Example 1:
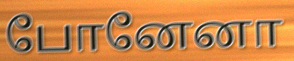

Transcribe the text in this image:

போனேனா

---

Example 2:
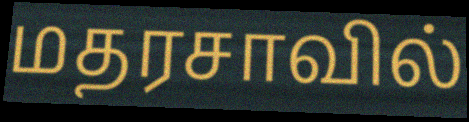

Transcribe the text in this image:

மதரசாவில்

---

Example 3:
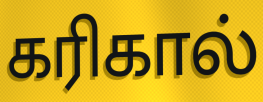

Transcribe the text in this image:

கரிகால்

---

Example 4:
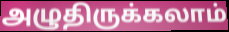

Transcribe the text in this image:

அழுதிருக்கலாம்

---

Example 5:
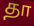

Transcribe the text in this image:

தா